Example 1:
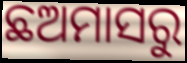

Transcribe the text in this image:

ଛଅମାସରୁ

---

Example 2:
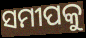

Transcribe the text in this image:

ସମୀପକୁ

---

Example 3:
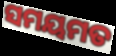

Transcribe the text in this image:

ସମୟମତ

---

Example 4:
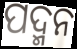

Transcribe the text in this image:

ପଦ୍ମନ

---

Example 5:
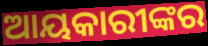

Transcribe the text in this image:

ଆୟକାରୀଙ୍କର